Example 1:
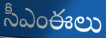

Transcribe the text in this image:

సీఎంఈలు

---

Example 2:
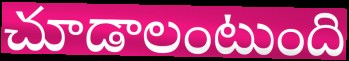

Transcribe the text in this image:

చూడాలంటుంది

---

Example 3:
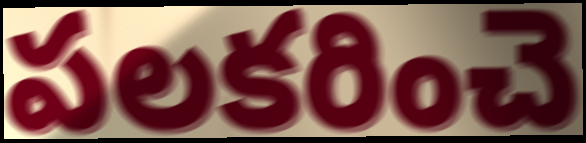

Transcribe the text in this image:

పలకరించె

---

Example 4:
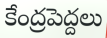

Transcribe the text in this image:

కేంద్రపెద్దలు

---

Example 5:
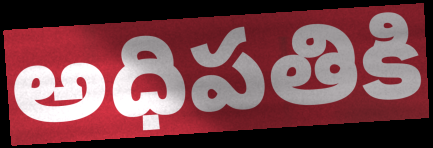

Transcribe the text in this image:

అధిపతికి